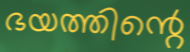
ഭയത്തിന്റെ